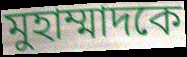
মুহাম্মাদকে